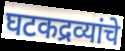
घटकद्रव्यांचे